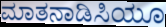
ಮಾತನಾಡಿಸಿಯೂ